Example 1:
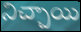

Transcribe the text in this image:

నిచ్చాయి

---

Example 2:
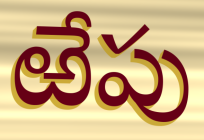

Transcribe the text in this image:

ఱేపు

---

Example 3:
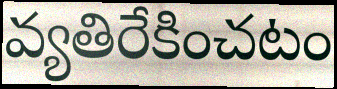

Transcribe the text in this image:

వ్యతిరేకించటం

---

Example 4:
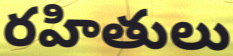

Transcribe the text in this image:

రహితులు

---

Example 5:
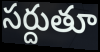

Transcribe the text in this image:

సర్దుతూ